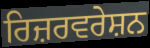
ਰਿਜ਼ਰਵਰੇਸ਼ਨ